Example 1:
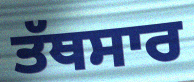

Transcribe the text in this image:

ਤੱਥਸਾਰ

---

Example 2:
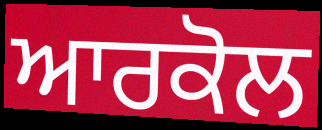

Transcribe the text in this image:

ਆਰਕੋਲ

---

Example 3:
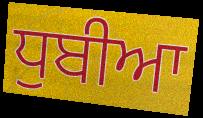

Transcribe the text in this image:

ਧੁਬੀਆ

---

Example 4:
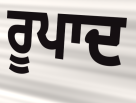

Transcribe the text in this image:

ਰੂਪਾਦ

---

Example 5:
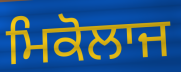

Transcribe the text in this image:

ਮਿਕੋਲਾਜ